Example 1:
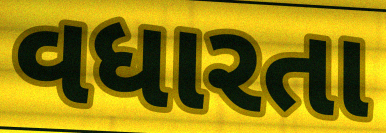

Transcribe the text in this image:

વધારતા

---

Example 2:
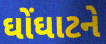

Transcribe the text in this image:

ઘોંઘાટને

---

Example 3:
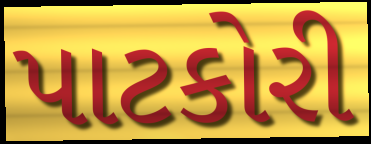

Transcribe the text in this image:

પાટકોરી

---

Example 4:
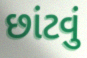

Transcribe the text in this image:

છાંટવું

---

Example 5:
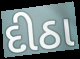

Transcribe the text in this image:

દીઠા